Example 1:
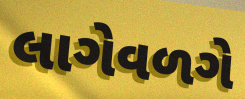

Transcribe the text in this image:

લાગેવળગે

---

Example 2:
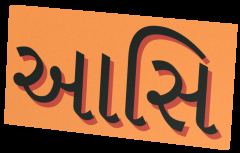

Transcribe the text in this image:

આસિ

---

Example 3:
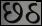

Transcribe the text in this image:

છઠ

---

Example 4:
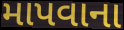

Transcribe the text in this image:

માપવાના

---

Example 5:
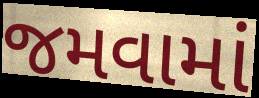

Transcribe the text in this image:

જમવામાં